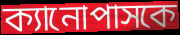
ক্যানোপাসকে